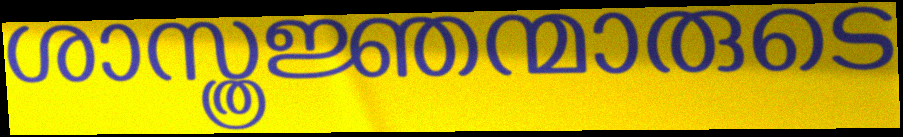
ശാസ്ത്രജ്ഞന്മാരുടെ